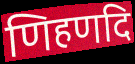
णिहणदि